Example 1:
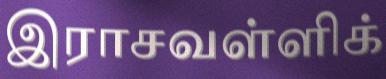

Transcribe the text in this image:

இராசவள்ளிக்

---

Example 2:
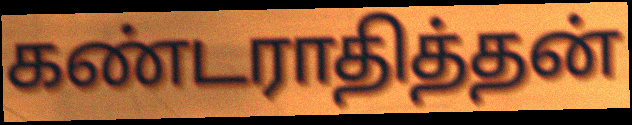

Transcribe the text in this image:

கண்டராதித்தன்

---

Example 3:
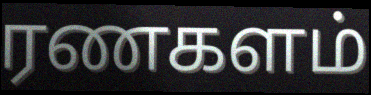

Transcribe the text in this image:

ரணகளம்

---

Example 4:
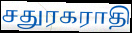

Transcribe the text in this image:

சதுரகராதி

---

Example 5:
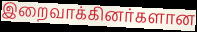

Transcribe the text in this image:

இறைவாக்கினர்களான